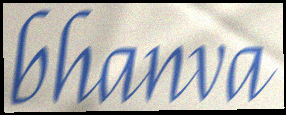
bhanva